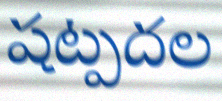
షట్పదల